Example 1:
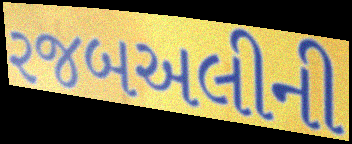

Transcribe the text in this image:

રજબઅલીની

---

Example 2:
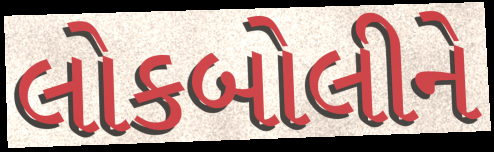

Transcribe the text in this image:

લોકબોલીને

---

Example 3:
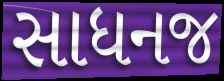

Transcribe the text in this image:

સાધનજ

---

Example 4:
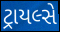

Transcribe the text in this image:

ટ્રાયલ્સે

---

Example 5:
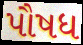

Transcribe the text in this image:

પૌષધ